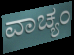
ವಾಚ್ಯಂ